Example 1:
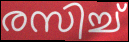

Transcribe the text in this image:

രസിച്ച്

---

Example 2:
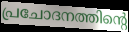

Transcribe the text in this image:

പ്രചോദനത്തിന്റെ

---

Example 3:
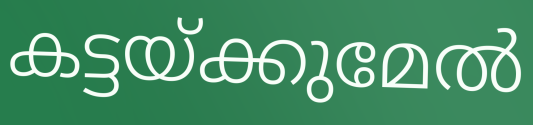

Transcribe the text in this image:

കട്ടയ്ക്കുമേൽ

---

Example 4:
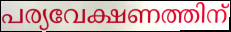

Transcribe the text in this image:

പര്യവേക്ഷണത്തിന്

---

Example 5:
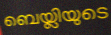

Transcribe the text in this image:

ബെയ്ലിയുടെ